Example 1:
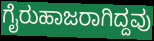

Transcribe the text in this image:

ಗೈರುಹಾಜರಾಗಿದ್ದವು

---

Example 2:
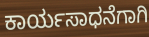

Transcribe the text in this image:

ಕಾರ್ಯಸಾಧನೆಗಾಗಿ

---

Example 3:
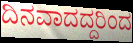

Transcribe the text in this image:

ದಿನವಾದದ್ದರಿಂದ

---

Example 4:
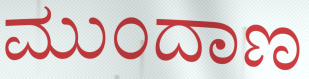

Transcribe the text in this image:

ಮುಂದಾಣ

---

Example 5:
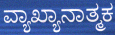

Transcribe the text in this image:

ವ್ಯಾಖ್ಯಾನಾತ್ಮಕ